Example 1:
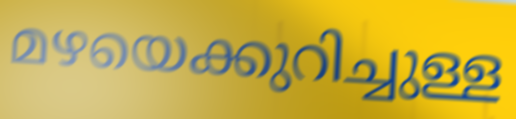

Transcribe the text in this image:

മഴയെക്കുറിച്ചുള്ള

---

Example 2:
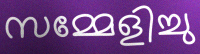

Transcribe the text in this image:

സമ്മേളിച്ചു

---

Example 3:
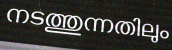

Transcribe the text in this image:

നടത്തുന്നതിലും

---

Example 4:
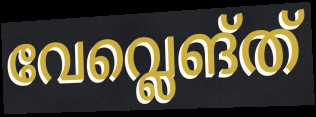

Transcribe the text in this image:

വേവ്ലെങ്ത്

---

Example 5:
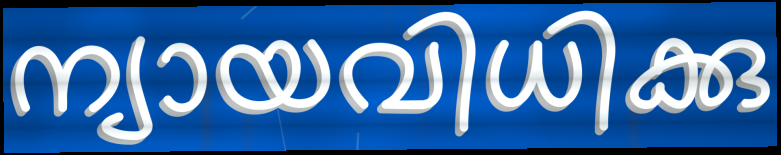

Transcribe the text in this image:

ന്യായവിധിക്കു